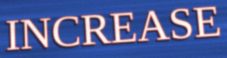
INCREASE